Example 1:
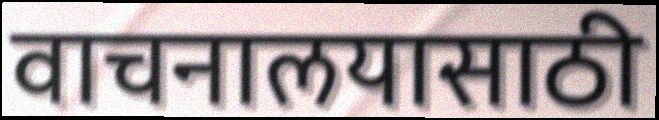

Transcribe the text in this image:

वाचनालयासाठी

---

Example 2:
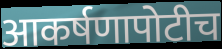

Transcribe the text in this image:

आकर्षणापोटीच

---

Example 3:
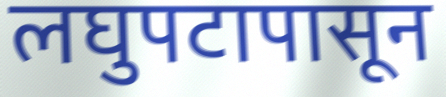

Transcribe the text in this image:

लघुपटापासून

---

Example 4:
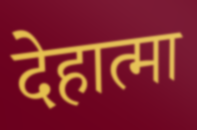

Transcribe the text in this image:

देहात्मा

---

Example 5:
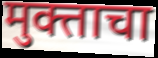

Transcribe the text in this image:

मुक्ताचा